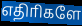
எதிரிகளே